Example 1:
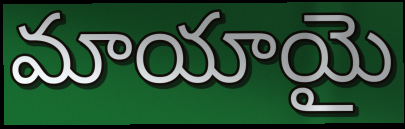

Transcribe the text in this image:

మాయాయై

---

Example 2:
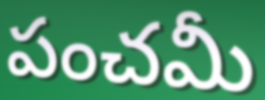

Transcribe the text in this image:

పంచమీ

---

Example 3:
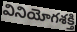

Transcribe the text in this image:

వినియోగశక్తి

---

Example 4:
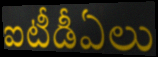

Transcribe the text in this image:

ఐటీడీఏలు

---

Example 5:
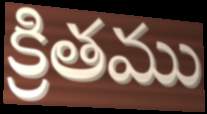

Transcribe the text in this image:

క్రితము